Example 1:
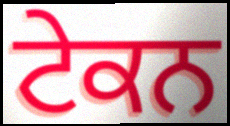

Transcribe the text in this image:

ਟੇਕਨ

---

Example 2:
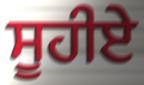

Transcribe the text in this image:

ਸੂਹੀਏ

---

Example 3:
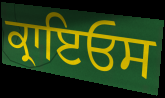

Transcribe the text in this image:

ਕ੍ਰਾਇਓਸ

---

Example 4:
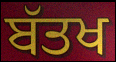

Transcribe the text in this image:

ਬੱਤਖ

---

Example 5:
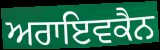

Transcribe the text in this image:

ਅਰਾਇਵਕੈਨ